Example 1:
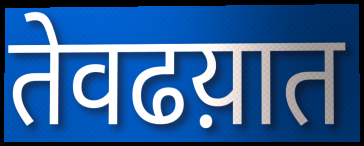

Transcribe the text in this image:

तेवढय़ात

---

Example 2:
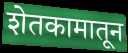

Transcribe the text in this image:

शेतकामातून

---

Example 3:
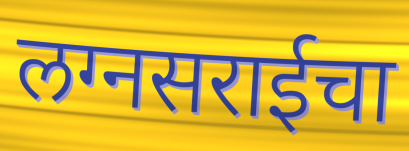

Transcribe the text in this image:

लग्नसराईचा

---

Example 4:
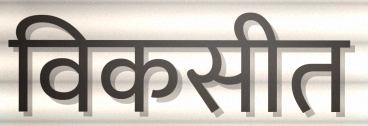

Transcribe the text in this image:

विकसीत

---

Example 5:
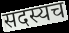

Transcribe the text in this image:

सदस्यच